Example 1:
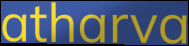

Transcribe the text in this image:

atharva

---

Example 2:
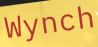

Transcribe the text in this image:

Wynch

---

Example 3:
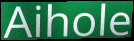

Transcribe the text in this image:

Aihole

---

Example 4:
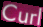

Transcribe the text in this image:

Curl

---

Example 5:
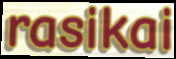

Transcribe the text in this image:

rasikai